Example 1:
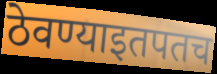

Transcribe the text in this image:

ठेवण्याइतपतच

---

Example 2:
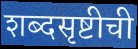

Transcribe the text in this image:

शब्दसृष्टीची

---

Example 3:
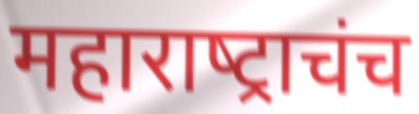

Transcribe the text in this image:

महाराष्ट्राचंच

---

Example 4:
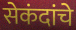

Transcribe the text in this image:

सेकंदांचे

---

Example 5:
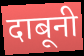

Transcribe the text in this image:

दाबूनी